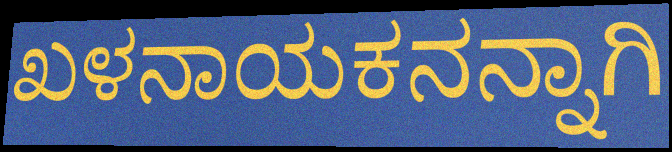
ಖಳನಾಯಕನನ್ನಾಗಿ